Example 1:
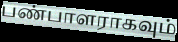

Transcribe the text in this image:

பண்பாளராகவும்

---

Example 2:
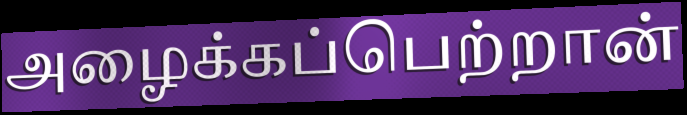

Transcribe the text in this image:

அழைக்கப்பெற்றான்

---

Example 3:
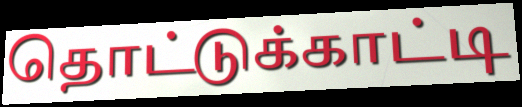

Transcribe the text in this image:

தொட்டுக்காட்டி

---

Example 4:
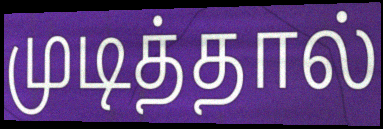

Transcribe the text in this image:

முடித்தால்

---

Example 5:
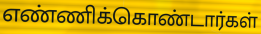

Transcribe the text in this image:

எண்ணிக்கொண்டார்கள்